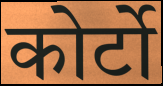
कोर्टो